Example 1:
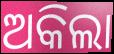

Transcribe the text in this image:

ଅକିଲା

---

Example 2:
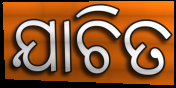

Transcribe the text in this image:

ଯାଚିତ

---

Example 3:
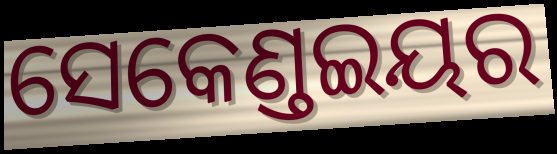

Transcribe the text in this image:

ସେକେଣ୍ଡଇୟର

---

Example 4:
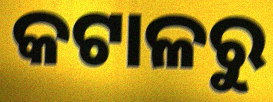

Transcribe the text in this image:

କଟାଳରୁ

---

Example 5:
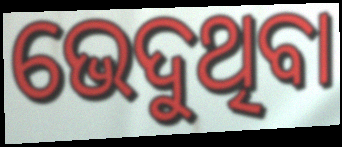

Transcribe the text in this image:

ଭେଦୁଥିବା